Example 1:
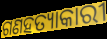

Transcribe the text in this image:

ଗଣହତ୍ୟାକାରୀ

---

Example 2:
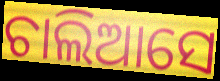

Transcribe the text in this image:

ଚାଲିଆସେ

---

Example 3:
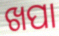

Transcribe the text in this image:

ଖପା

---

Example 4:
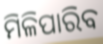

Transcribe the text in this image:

ମିଳିପାରିବ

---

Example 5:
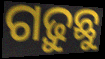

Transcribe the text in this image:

ଗଢ଼ୁଛୁ